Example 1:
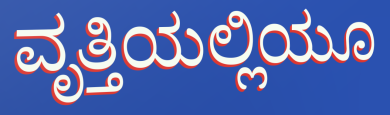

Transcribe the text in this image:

ವೃತ್ತಿಯಲ್ಲಿಯೂ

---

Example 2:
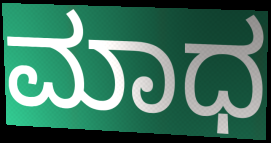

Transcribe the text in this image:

ಮಾಧ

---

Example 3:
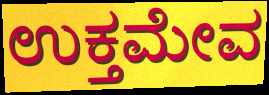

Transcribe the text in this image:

ಉಕ್ತಮೇವ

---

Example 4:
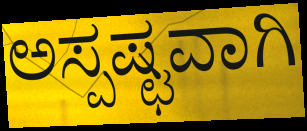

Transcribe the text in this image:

ಅಸ್ಪಷ್ಟವಾಗಿ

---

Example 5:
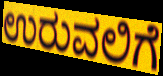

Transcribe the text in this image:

ಉರುವಲಿಗೆ